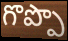
గొప్పొ